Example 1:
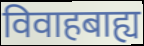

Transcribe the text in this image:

विवाहबाह्य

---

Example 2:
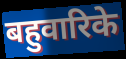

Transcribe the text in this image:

बहुवारिके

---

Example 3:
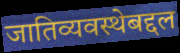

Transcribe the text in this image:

जातिव्यवस्थेबद्दल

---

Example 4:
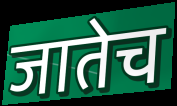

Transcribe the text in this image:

जातेच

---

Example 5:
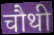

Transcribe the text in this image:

चौथी